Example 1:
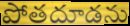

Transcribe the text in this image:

పోతదూడను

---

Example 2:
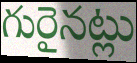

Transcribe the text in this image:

గురైనట్లు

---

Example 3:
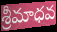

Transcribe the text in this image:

శ్రీమాధవ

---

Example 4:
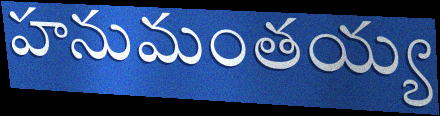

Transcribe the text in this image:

హనుమంతయ్య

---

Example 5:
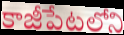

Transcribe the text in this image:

కాజీపేటలోని